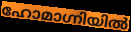
ഹോമാഗ്നിയിൽ